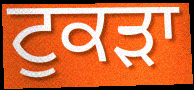
ਟੁਕੜਾ